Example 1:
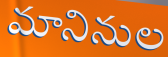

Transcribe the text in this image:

మానినుల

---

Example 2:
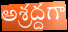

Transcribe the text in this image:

అశ్రద్దగా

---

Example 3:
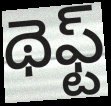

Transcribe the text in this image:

థెఫ్ట్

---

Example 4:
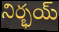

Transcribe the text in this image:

నిర్భయ్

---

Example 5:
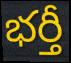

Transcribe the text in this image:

భర్తీ